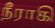
நீராகி